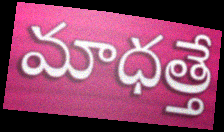
మాధత్తే